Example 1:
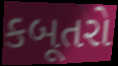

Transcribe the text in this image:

કબૂતરો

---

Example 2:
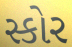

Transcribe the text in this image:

સ્કોર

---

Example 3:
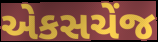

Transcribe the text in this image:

એકસચેંજ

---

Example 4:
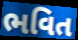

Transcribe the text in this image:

ભવિત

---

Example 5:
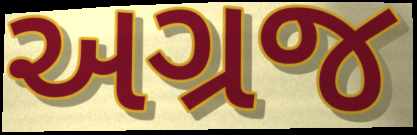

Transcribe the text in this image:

અગ્રજ